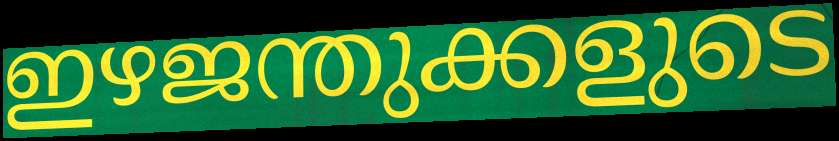
ഇഴജന്തുക്കളുടെ